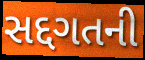
સદ્દગતની